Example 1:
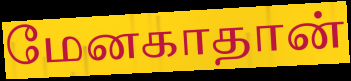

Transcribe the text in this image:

மேனகாதான்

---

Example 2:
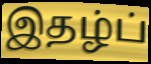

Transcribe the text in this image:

இதழ்ப்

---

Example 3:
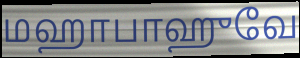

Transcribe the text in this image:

மஹாபாஹுவே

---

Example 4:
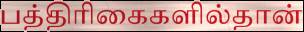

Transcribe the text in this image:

பத்திரிகைகளில்தான்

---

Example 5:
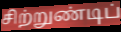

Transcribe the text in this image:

சிற்றுண்டிப்